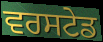
ਵਰਸਟੇਡ